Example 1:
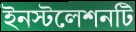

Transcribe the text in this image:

ইনস্টলেশনটি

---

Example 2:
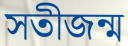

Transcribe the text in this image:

সতীজন্ম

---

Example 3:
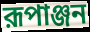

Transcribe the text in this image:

রূপাঞ্জন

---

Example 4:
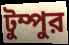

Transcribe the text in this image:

টুম্পুর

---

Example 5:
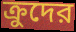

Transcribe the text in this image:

ক্রুদের